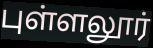
புள்ளலூர்